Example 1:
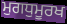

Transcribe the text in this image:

ਮੁਗਧੁਮੂਰਖ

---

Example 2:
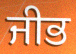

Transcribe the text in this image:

ਜੀਭ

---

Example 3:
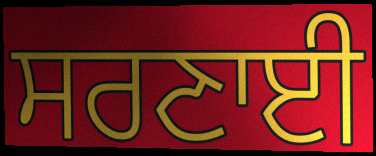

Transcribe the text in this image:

ਸਰਣਾਈ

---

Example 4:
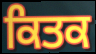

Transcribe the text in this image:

ਕਿਤਕ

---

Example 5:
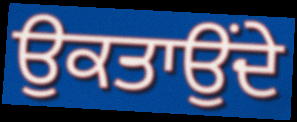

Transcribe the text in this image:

ਉਕਤਾਉਂਦੇ